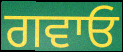
ਗਵਾਓ